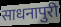
साधनापुरी